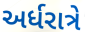
અર્ધરાત્રે